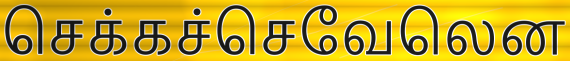
செக்கச்செவேலென